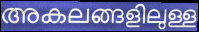
അകലങ്ങളിലുള്ള